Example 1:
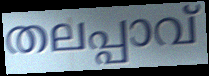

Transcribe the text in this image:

തലപ്പാവ്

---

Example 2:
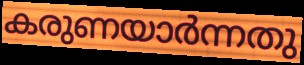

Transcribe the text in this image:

കരുണയാർന്നതു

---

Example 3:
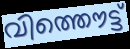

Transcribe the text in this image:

വിത്തൌട്ട്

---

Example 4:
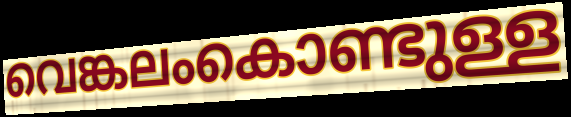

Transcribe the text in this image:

വെങ്കലംകൊണ്ടുള്ള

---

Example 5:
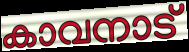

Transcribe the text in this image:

കാവനാട്